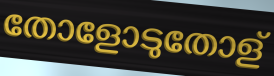
തോളോടുതോള്